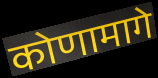
कोणामागे